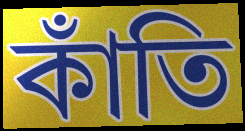
কাঁতি